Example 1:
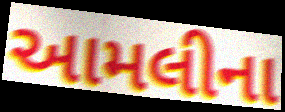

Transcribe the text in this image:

આમલીના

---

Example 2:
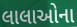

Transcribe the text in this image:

લાલાઓના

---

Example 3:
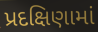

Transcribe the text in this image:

પ્રદક્ષિણામાં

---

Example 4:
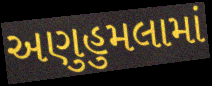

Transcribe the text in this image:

અણુહુમલામાં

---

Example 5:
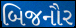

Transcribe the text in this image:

બિજનૌર